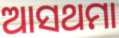
ଆସଥମା